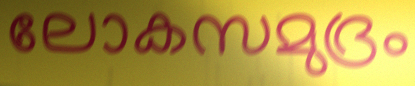
ലോകസമുദ്രം